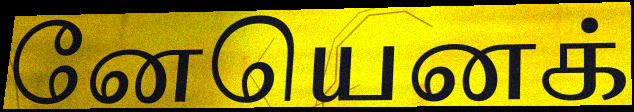
னேயெனக்